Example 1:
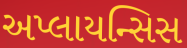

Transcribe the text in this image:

અપ્લાયન્સિસ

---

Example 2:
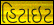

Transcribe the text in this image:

હિટાઇટ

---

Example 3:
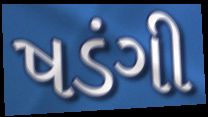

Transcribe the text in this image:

ષડંગી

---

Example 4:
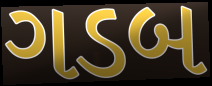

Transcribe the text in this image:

ગડબ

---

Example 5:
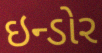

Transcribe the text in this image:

ઇન્ડોર